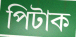
পিটাক